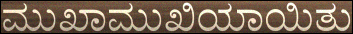
ಮುಖಾಮುಖಿಯಾಯಿತು